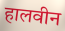
हालवीन